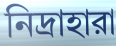
নিদ্রাহারা